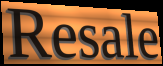
Resale